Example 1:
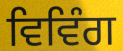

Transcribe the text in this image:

ਵਿਵਿੰਗ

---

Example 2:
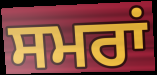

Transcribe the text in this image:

ਸਮਰਾਂ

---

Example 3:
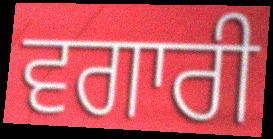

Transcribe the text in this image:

ਵਗਾਰੀ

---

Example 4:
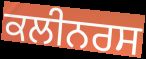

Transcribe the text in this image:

ਕਲੀਨਰਸ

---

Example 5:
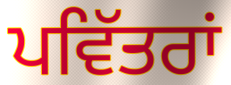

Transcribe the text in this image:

ਪਵਿੱਤਰਾਂ